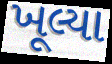
ખૂલ્યા